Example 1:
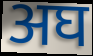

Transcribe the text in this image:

अघ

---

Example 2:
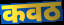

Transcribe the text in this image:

कवठ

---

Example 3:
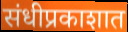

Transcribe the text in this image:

संधीप्रकाशात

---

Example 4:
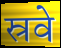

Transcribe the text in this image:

स्रवे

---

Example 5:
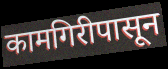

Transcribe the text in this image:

कामगिरीपासून